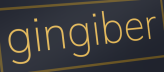
gingiber